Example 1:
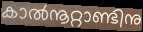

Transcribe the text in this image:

കാൽനൂറ്റാണ്ടിനു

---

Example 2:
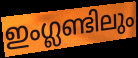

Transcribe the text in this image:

ഇംഗ്ലണ്ടിലും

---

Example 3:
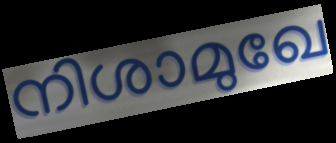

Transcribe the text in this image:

നിശാമുഖേ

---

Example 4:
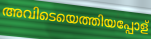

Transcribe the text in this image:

അവിടെയെത്തിയപ്പോള്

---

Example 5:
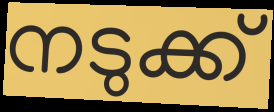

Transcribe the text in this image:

നടുക്ക്